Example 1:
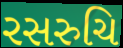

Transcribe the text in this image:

રસરુચિ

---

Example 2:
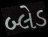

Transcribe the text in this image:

બ્લેડ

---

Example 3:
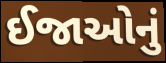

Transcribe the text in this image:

ઈજાઓનું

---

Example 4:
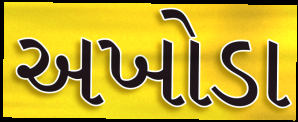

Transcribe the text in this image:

અખોડા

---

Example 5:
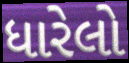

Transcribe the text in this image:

ધારેલો